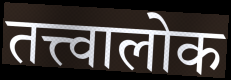
तत्त्वालोक